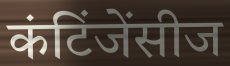
कंटिंजेंसीज